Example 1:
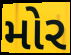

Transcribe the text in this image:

મોર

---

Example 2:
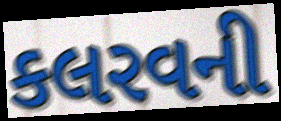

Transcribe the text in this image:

કલરવની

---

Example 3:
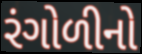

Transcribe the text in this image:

રંગોળીનો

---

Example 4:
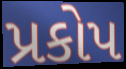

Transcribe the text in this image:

પ્રકોપ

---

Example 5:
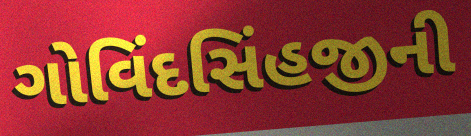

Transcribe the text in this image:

ગોવિંદસિંહજીની